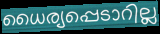
ധൈര്യപ്പെടാറില്ല